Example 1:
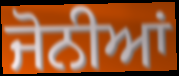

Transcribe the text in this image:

ਜੋਨੀਆਂ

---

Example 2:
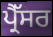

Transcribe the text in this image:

ਪ੍ਰੈੱਸਰ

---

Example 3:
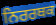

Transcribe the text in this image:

ਨਿਰਰਥਕ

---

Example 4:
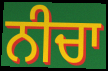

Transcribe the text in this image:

ਨੀਚਾ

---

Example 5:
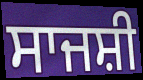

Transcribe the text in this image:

ਸਾਜਸ਼ੀ